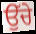
ਉੱਚੇ